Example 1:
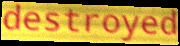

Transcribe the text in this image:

destroyed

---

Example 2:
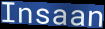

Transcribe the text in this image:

Insaan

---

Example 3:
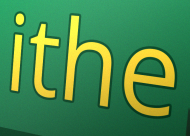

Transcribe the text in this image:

ithe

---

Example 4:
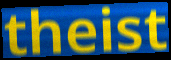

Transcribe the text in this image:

theist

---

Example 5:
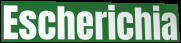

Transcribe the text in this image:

Escherichia